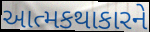
આત્મકથાકારને